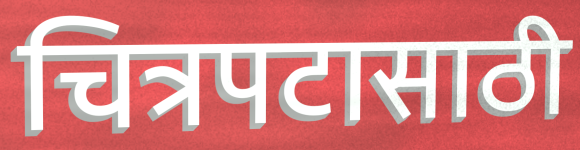
चित्रपटासाठी